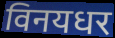
विनयधर